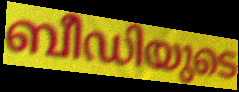
ബീഡിയുടെ